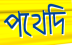
পথেদি